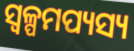
ସ୍ୱଳ୍ପମପ୍ୟସ୍ୟ